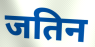
जतिन